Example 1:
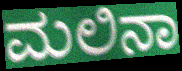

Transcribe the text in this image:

ಮಲಿನಾ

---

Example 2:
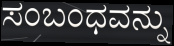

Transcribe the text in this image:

ಸಂಬಂಧವನ್ನು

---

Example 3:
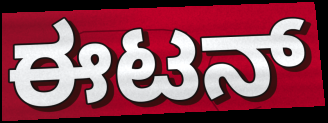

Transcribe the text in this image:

ಈಟನ್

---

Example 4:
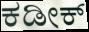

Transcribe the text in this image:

ಕಡೀಕ್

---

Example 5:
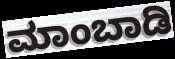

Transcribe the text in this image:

ಮಾಂಬಾಡಿ